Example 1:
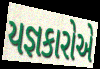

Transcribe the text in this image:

યજ્ઞકારોએ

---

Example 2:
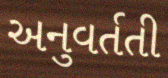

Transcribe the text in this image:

અનુવર્તતી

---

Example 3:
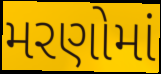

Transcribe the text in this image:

મરણોમાં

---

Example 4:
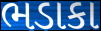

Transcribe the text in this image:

ભડાકા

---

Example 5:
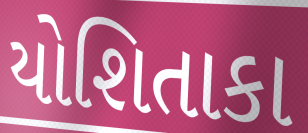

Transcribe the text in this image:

યોશિતાકા